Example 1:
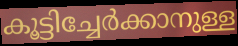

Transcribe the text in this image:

കൂട്ടിച്ചേർക്കാനുള്ള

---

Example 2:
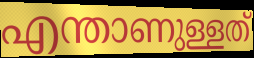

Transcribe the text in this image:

എന്താണുള്ളത്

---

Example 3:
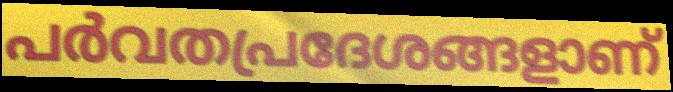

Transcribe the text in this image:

പർവതപ്രദേശങ്ങളാണ്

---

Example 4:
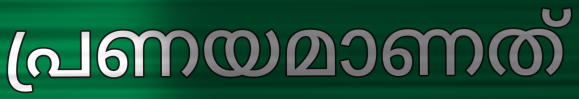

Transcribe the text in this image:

പ്രണയമാണത്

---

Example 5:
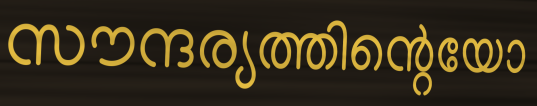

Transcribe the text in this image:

സൗന്ദര്യത്തിന്റെയോ